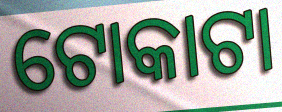
ଟୋକାଟା